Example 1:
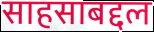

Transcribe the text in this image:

साहसाबद्दल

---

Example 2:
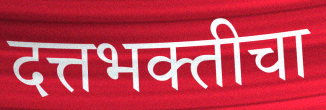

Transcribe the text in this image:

दत्तभक्तीचा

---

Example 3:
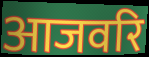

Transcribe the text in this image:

आजवरि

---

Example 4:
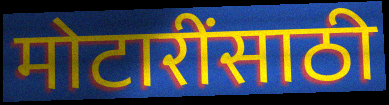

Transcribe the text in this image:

मोटारींसाठी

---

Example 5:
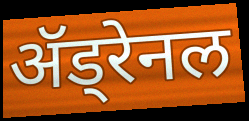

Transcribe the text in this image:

ॲड्रेनल